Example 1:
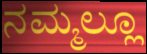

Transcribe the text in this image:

ನಮ್ಮಲ್ಲೂ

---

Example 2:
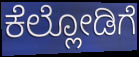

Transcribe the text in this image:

ಕೆಲ್ಲೋಡಿಗೆ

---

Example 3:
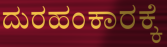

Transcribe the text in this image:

ದುರಹಂಕಾರಕ್ಕೆ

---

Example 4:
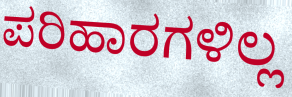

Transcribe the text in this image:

ಪರಿಹಾರಗಳಿಲ್ಲ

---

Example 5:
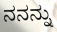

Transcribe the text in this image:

ನನನ್ನು